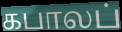
கபாலப்